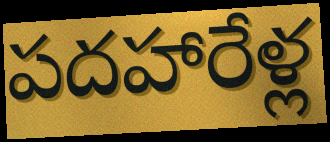
పదహారేళ్ల